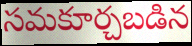
సమకూర్చబడిన